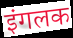
इंगलक